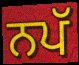
ਨਪੱ